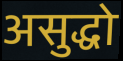
असुद्धो